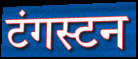
टंगस्टन